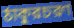
ঠাকুরচরণ